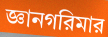
জ্ঞানগরিমার